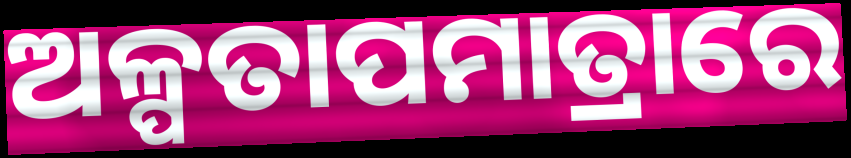
ଅଳ୍ପତାପମାତ୍ରାରେ